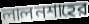
লালনশাহের